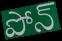
పోన్